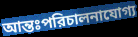
আন্তঃপরিচালনাযোগ্য